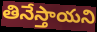
తినేస్తాయని